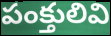
పంక్తులివి